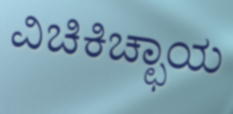
ವಿಚಿಕಿಚ್ಛಾಯ